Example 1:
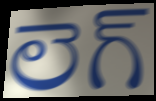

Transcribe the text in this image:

లెగ్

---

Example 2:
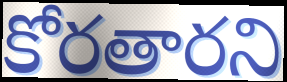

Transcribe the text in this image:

కోరతారని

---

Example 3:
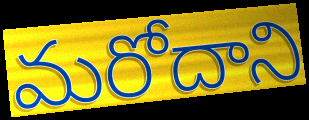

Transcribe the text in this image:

మరోదాని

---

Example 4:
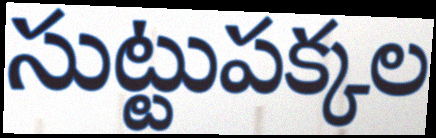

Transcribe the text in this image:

సుట్టుపక్కల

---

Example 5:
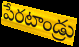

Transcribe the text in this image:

పేరటాండ్రు